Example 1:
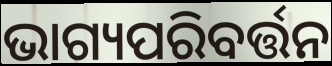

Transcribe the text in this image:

ଭାଗ୍ୟପରିବର୍ତ୍ତନ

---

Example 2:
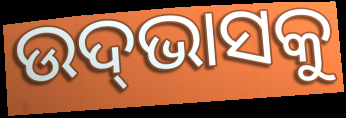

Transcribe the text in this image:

ଉଦ୍‌ଭାସକୁ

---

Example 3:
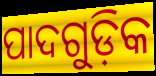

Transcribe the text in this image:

ପାଦଗୁଡ଼ିକ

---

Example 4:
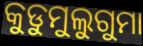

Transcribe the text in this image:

କୁଡୁମୁଲୁଗୁମା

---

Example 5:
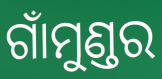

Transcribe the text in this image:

ଗାଁମୁଣ୍ଡର